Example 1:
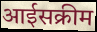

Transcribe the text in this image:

आईसक्रीम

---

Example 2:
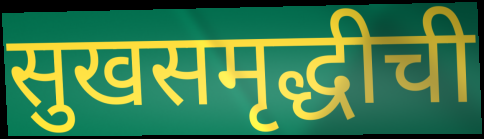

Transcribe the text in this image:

सुखसमृद्धीची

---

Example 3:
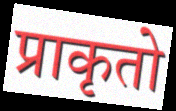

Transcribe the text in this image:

प्राकृतो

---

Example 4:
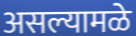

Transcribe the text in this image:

असल्यामळे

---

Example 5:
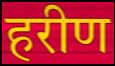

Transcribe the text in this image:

हरीण